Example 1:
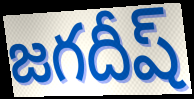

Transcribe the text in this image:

జగదీష్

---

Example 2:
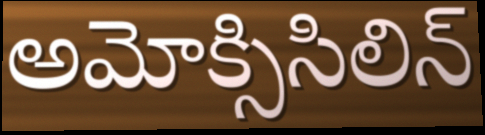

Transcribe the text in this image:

అమోక్సిసిలిన్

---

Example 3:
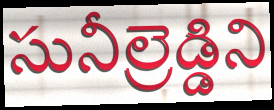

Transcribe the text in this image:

సునీల్రెడ్డిని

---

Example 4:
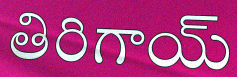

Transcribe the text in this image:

తిరిగాయ్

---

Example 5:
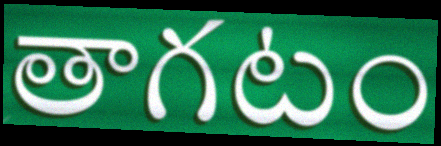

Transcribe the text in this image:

తాగటం